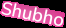
Shubho